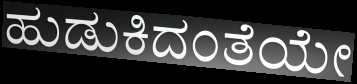
ಹುಡುಕಿದಂತೆಯೇ